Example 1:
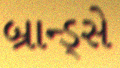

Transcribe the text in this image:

બ્રાન્ડ્સે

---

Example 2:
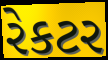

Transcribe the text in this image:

રેકટર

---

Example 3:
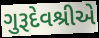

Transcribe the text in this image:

ગુરૂદેવશ્રીએ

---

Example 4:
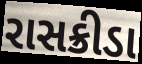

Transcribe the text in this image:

રાસક્રીડા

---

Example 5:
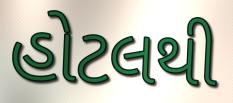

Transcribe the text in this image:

હોટલથી